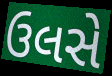
ઉલસે